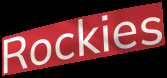
Rockies